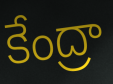
కేంద్రా